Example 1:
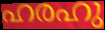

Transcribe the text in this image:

ഹരഹു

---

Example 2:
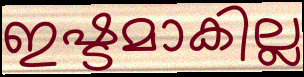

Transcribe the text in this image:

ഇഷ്ടമാകില്ല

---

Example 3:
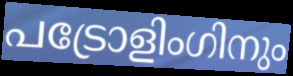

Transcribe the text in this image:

പട്രോളിംഗിനും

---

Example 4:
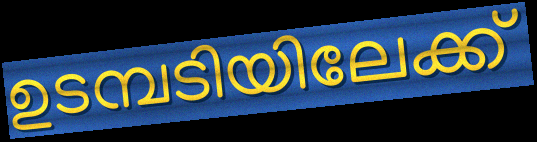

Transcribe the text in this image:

ഉടമ്പടിയിലേക്ക്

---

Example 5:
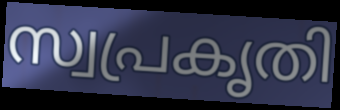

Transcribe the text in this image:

സ്വപ്രകൃതി